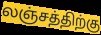
லஞ்சத்திற்கு